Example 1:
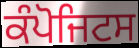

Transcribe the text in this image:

ਕੰਪੋਜਿਟਸ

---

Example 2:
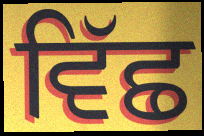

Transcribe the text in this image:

ਵਿੱਛ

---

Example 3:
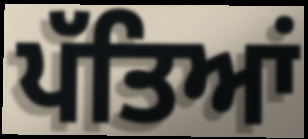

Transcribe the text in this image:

ਪੱਤਿਆਂ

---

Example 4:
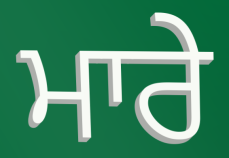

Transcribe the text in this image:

ਮਾਰੇ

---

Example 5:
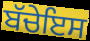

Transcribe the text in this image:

ਬੱਚੇਇਸ